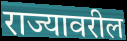
राज्यावरील